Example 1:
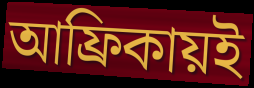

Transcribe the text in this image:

আফ্রিকায়ই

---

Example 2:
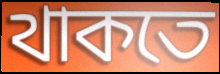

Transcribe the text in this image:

থাকতে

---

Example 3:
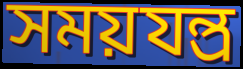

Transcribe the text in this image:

সময়যন্ত্র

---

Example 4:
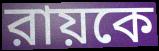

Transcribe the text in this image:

রায়কে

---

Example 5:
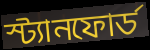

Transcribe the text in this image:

স্ট্যানফোর্ড